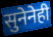
सुनेनेही